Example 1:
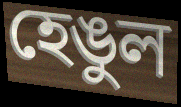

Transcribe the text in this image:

হেঙুল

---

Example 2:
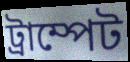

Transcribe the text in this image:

ট্ৰাম্পেট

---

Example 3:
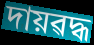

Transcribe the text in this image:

দায়ৱদ্ধ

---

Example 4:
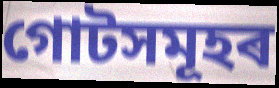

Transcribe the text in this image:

গোটসমূহৰ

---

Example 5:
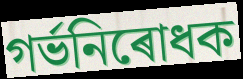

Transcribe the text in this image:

গৰ্ভনিৰোধক